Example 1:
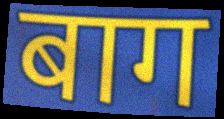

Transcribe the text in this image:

बाग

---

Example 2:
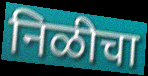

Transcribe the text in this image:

निळीचा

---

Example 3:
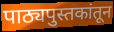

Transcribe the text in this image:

पाठ्यपुस्तकांतून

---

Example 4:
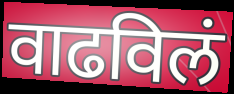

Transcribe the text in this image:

वाढविलं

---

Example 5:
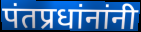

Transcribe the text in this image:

पंतप्रधांनांनी